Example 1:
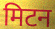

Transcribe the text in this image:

मिटन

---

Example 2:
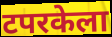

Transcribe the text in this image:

टपरकेला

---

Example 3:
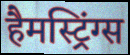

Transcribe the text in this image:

हैमस्ट्रिंग्स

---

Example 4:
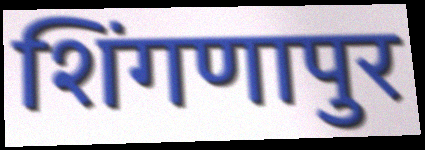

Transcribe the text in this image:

शिंगणापुर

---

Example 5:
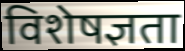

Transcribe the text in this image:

विशेषज्ञता